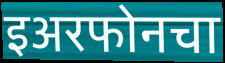
इअरफोनचा